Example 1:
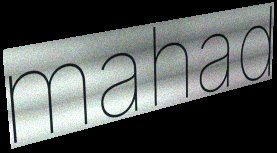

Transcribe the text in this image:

mahad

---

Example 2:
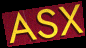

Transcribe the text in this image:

ASX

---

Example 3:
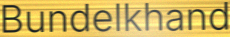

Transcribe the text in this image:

Bundelkhand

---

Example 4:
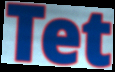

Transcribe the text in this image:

Tet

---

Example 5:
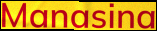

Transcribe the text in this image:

Manasina